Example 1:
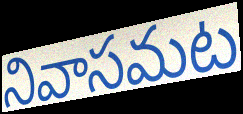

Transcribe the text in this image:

నివాసమట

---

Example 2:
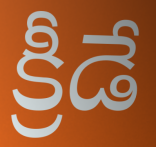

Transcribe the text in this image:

క్రీడే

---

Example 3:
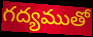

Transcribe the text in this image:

గద్యముతో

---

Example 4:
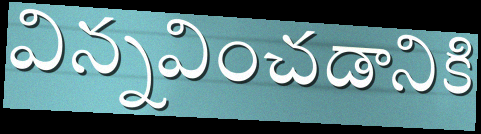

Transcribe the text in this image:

విన్నవించడానికి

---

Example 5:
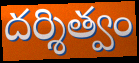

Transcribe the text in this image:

దర్శిత్వం